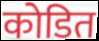
कोडित